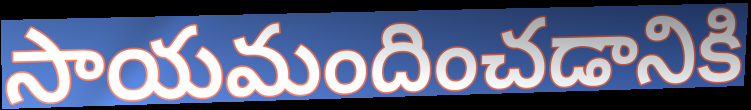
సాయమందించడానికి